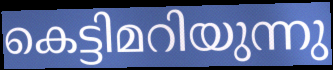
കെട്ടിമറിയുന്നു